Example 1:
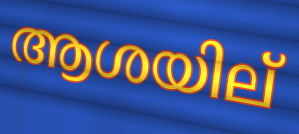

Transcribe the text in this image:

ആശയില്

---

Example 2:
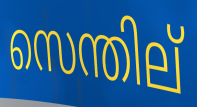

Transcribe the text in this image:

സെന്തില്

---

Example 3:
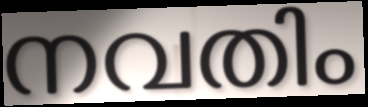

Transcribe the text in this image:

നവതിം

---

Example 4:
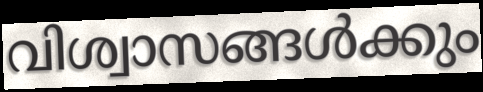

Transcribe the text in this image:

വിശ്വാസങ്ങൾക്കും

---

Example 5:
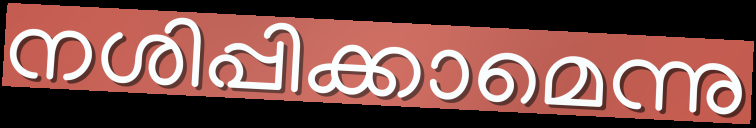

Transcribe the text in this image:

നശിപ്പിക്കാമെന്നു